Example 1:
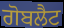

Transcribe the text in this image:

ਗੋਬਲੈਟ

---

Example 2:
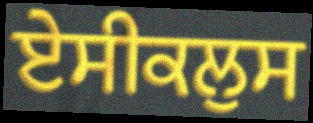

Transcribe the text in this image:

ਏਸੀਕਲੁਸ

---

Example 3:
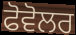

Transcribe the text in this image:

ਫੋਵੋਲਰ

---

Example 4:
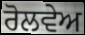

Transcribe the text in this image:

ਰੋਲਵੇਅ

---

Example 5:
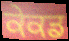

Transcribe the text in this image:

ਕੇਕਡ